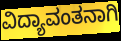
ವಿದ್ಯಾವಂತನಾಗಿ